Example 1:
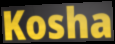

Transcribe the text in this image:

Kosha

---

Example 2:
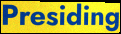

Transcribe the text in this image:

Presiding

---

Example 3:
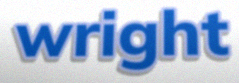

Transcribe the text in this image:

wright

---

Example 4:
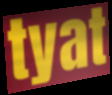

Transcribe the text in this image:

tyat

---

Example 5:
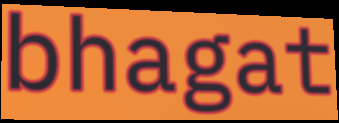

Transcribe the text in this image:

bhagat